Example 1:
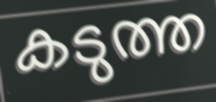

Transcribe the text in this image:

കടുത്ത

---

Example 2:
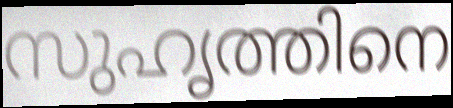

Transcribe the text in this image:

സുഹൃത്തിനെ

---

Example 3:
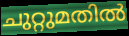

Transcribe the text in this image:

ചുറ്റുമതിൽ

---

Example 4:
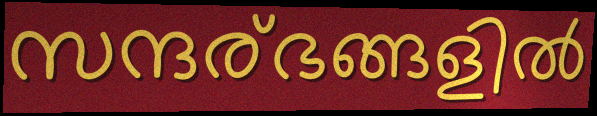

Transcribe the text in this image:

സന്ദര്ഭങ്ങളിൽ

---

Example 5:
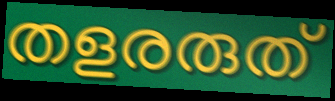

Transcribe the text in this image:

തളരരുത്